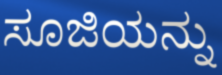
ಸೂಜಿಯನ್ನು